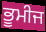
ਭੂਮੀਜ